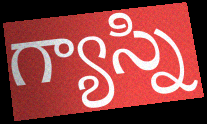
గ్యాస్ని